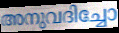
അനുവദിച്ചോ